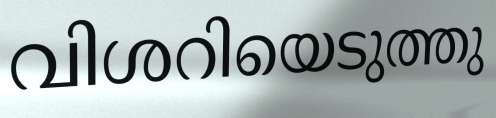
വിശറിയെടുത്തു